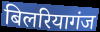
बिलरियागंज